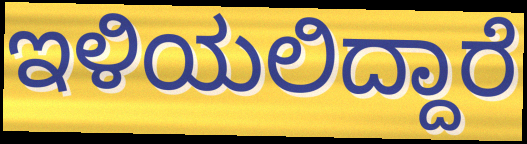
ಇಳಿಯಲಿದ್ದಾರೆ